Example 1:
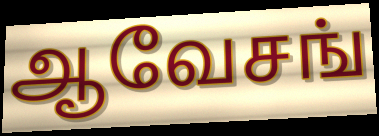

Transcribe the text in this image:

ஆவேசங்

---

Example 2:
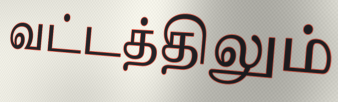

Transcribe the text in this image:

வட்டத்திலும்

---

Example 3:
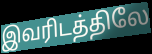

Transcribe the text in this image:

இவரிடத்திலே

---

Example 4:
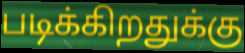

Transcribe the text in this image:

படிக்கிறதுக்கு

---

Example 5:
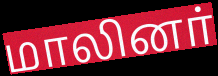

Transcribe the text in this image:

மாலினர்